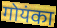
गोयंका